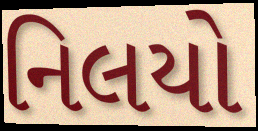
નિલયો